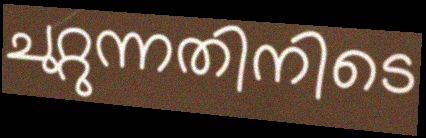
ചുറ്റുന്നതിനിടെ